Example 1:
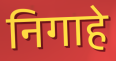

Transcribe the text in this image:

निगाहे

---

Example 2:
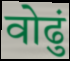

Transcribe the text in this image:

वोढुं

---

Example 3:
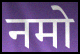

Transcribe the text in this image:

नमो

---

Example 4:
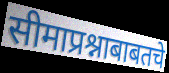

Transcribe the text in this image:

सीमाप्रश्नाबाबतचे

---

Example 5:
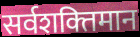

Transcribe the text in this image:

सर्वशक्‍तिमान